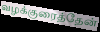
வழக்குரைத்தேன்